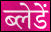
ब्लेडें